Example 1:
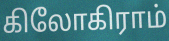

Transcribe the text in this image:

கிலோகிராம்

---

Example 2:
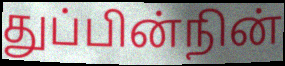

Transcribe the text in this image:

துப்பின்நின்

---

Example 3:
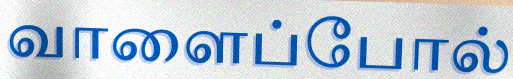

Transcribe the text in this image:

வாளைப்போல்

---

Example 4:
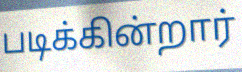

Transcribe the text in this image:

படிக்கின்றார்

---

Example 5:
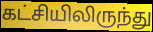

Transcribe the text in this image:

கட்சியிலிருந்து